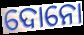
ଦୋନୋ